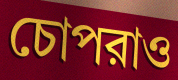
চোপরাও